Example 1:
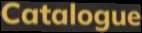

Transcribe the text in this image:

Catalogue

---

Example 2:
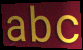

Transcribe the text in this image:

abc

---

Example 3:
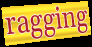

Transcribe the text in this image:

ragging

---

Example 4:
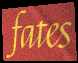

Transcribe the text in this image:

fates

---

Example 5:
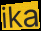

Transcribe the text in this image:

ika